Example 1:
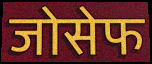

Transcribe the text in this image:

जोसेफ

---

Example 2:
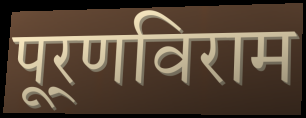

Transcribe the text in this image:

पूर्णविराम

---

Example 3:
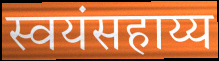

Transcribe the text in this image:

स्वयंसहाय्य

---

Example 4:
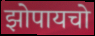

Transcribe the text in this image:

झोपायचो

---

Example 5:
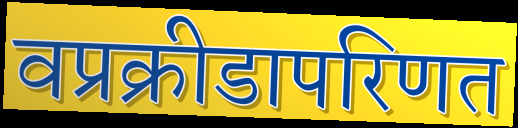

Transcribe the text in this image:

वप्रक्रीडापरिणत